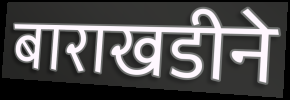
बाराखडीने